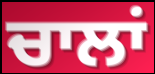
ਚਾਲਾਂ